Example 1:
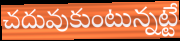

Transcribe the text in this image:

చదువుకుంటున్నట్టే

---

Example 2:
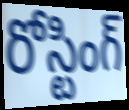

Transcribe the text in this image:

రోస్టింగ్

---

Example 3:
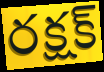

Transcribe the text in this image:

రక్షక్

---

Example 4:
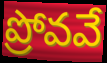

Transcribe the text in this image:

ప్రోవవే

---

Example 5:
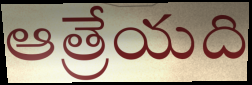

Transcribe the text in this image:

ఆత్రేయది